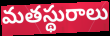
మతస్థురాలు